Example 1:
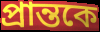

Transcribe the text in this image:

প্রান্তকে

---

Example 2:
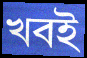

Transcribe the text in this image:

খবই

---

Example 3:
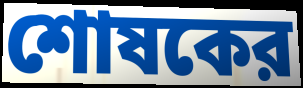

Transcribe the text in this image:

শোষকের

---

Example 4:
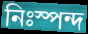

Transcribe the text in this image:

নিঃস্পন্দ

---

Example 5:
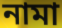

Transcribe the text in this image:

নামা